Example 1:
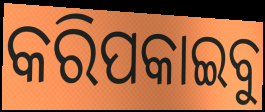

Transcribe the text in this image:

କରିପକାଇବୁ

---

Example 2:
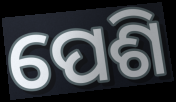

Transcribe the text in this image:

ପେଶି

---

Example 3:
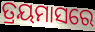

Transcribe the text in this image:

ତ୍ରୟମାସରେ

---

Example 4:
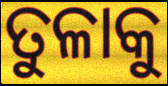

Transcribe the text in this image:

ତୁଳାକୁ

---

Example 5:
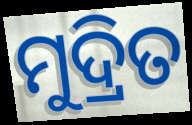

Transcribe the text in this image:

ମୁଦ୍ରିତ